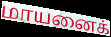
மாயனைக்